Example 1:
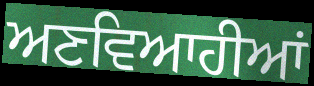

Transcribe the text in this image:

ਅਣਵਿਆਹੀਆਂ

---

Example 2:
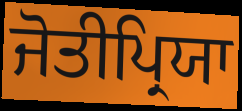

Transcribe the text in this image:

ਜੋਤੀਪ੍ਰਿਯਾ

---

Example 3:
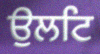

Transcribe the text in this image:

ਉਲਟਿ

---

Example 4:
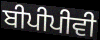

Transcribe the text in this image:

ਬੀਪੀਪੀਵੀ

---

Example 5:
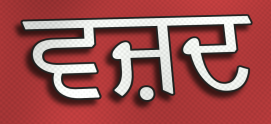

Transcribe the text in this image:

ਵਜ਼ਦ